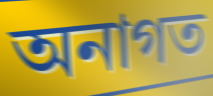
অনাগত